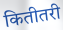
कितीतरी